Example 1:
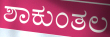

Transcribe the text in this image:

ಶಾಕುಂತಲ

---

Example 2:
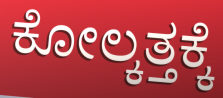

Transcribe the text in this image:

ಕೋಲ್ಕತ್ತಕ್ಕೆ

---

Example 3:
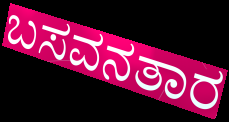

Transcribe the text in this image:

ಬಸವನತಾರ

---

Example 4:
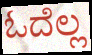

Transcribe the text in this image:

ಓದೆಲ್ಲ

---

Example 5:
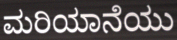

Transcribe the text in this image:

ಮರಿಯಾನೆಯು